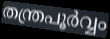
തന്ത്രപൂർവ്വം